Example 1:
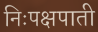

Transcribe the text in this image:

निःपक्षपाती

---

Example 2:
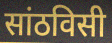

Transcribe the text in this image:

सांठविसी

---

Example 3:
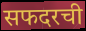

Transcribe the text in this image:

सफदरची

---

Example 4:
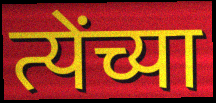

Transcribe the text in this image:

त्येंच्या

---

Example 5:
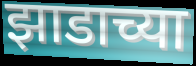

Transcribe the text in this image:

झाडाच्या